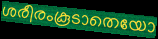
ശരീരംകൂടാതെയോ